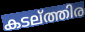
കടല്ത്തിര